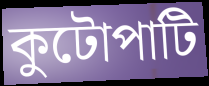
কুটোপাটি